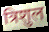
त्रिशुल